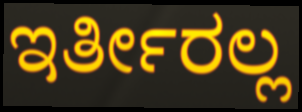
ಇರ್ತೀರಲ್ಲ